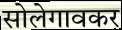
सोलेगावकर